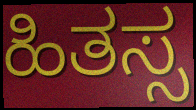
ಹಿತಸ್ಸ